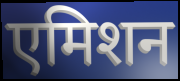
एमिशन